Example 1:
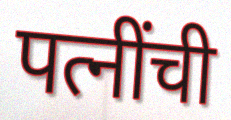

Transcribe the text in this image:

पत्नींची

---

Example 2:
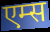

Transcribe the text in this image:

एम्स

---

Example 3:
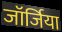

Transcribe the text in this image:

जॉर्जिया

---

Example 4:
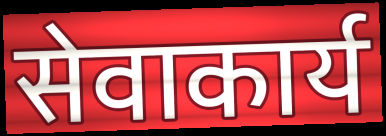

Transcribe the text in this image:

सेवाकार्य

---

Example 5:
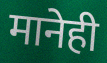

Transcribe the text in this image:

मानेही